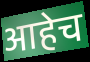
आहेच